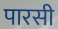
पारसी